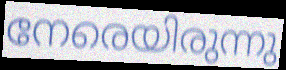
നേരെയിരുന്നു